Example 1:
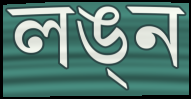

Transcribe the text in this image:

লঙ্ন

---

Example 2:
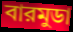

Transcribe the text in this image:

বারমুডা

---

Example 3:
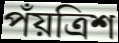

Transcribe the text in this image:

পঁয়ত্রিশ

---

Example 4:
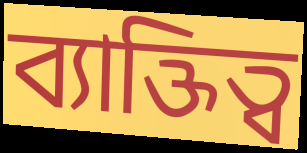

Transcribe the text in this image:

ব্যাক্তিত্ব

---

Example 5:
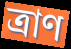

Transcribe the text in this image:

ত্রাণ